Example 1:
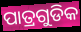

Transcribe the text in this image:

ପାତ୍ରଗୁଡିକ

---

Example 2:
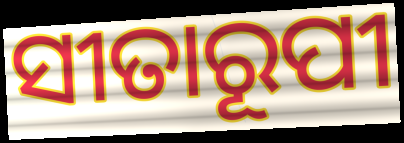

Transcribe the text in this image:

ସୀତାରୂପୀ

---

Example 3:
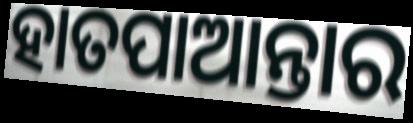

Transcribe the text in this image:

ହାତପାଆନ୍ତାର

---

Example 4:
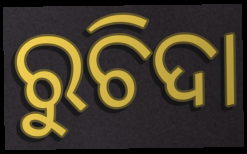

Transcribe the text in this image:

ରୁଚିଦା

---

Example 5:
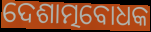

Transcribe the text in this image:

ଦେଶାତ୍ମବୋଧକ